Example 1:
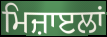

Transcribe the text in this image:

ਮਿਜ਼ਾੲਲਾਂ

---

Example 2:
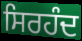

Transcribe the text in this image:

ਸਿਰਹੰਦ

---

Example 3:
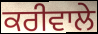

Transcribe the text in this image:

ਕਰੀਵਾਲੇ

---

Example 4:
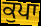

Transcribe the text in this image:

ਕੁਪਾ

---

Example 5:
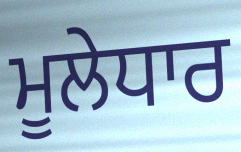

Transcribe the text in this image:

ਮੂਲੇਧਾਰ